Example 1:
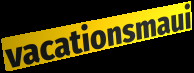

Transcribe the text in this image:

vacationsmaui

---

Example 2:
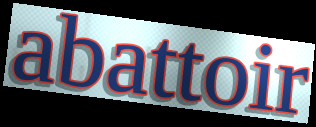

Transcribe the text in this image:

abattoir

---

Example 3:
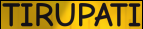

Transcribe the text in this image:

TIRUPATI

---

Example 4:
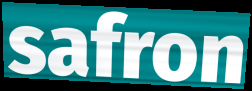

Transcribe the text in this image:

safron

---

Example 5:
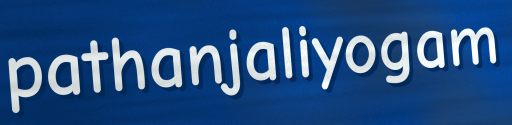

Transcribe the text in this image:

pathanjaliyogam